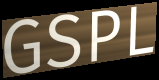
GSPL